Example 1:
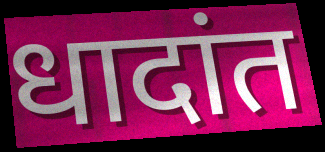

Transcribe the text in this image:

धादांत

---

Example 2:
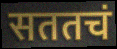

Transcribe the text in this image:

सततचं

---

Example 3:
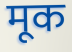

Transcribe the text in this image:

मूक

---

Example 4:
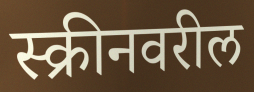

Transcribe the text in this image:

स्क्रीनवरील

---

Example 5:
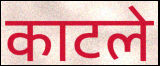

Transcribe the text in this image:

काटले